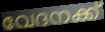
വേദനക്ക്